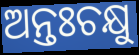
ଅନ୍ତଃଚକ୍ଷୁ